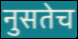
नुसतेच